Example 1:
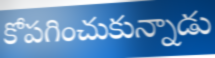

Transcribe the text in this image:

కోపగించుకున్నాడు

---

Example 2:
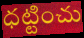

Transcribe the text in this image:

ధట్టించు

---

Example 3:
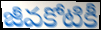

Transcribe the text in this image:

జీవకోటికీ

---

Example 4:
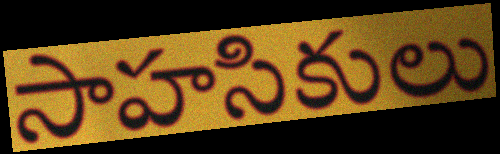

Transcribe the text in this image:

సాహసికులు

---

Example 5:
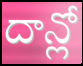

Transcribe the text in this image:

దాన్లో